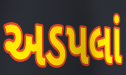
અડપલાં